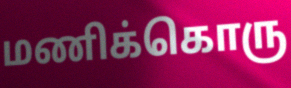
மணிக்கொரு